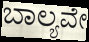
ಬಾಲ್ಯವೇ